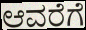
ಆವರೆಗೆ